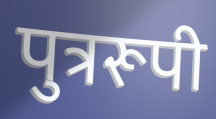
पुत्ररूपी